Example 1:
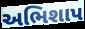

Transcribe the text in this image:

અભિશાપ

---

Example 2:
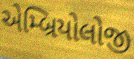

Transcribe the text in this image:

એમ્બ્રિયોલોજી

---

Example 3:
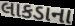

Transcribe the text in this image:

લાકડાના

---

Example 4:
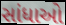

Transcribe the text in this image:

સાંધાઓ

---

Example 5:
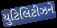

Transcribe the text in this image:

યુટિલિટીઝને